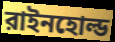
রাইনহোল্ড